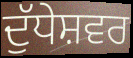
ਦੁੱਧੇਸ਼ਵਰ